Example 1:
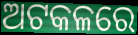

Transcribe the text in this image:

ଅଟକଳରେ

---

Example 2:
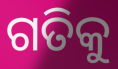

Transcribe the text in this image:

ଗତିକୁ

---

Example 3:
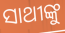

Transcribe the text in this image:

ସାଥୀଙ୍କୁ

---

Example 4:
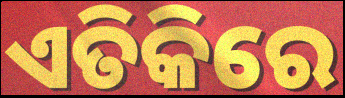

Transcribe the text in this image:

ଏତିକିରେ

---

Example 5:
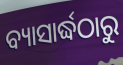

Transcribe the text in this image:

ବ୍ୟାସାର୍ଦ୍ଧଠାରୁ